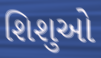
શિશુઓ